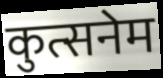
कुत्सनेम